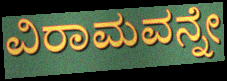
ವಿರಾಮವನ್ನೇ